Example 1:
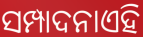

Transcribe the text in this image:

ସମ୍ପାଦନାଏହି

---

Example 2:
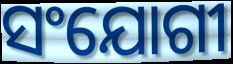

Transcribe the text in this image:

ସଂଯୋଗୀ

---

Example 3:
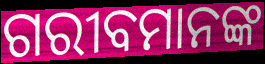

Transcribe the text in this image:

ଗରୀବମାନଙ୍କ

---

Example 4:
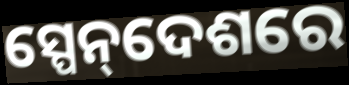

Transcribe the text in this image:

ସ୍ପେନ୍‌ଦେଶରେ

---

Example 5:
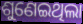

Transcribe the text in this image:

ଶୁଣେଇଥିଲା